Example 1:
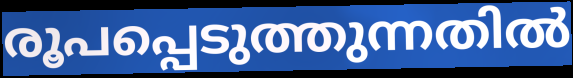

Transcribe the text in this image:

രൂപപ്പെടുത്തുന്നതിൽ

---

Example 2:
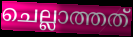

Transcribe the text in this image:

ചെല്ലാത്തത്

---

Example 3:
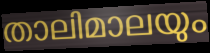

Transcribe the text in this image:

താലിമാലയും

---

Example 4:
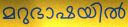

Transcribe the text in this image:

മറുഭാഷയിൽ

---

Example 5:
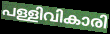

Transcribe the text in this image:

പള്ളിവികാരി